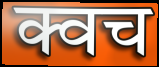
क्वच